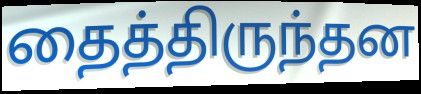
தைத்திருந்தன